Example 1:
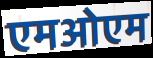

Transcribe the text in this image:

एमओएम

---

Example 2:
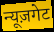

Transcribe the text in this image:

न्यूज़गेट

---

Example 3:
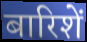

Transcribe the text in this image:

बारिशें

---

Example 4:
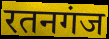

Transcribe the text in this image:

रतनगंज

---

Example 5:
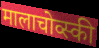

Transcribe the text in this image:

मालाचोव्स्की